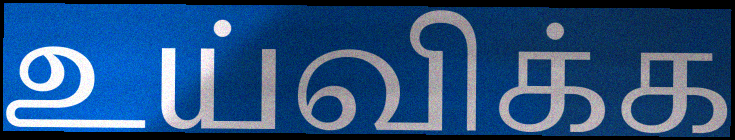
உய்விக்க